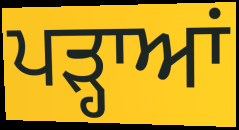
ਪੜ੍ਹਾਆਂ